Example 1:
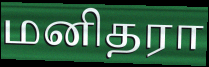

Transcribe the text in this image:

மனிதரா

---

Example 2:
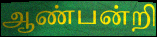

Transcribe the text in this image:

ஆண்பன்றி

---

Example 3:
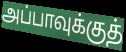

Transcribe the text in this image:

அப்பாவுக்குத்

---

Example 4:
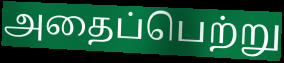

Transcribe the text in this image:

அதைப்பெற்று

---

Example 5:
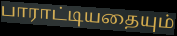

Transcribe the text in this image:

பாராட்டியதையும்